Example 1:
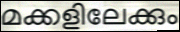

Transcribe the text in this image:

മക്കളിലേക്കും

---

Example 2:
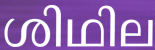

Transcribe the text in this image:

ശിഥില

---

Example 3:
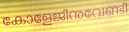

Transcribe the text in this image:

കോളേജിനുവേണ്ടി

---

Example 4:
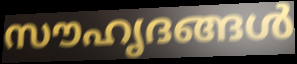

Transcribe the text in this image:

സൗഹൃദങ്ങൾ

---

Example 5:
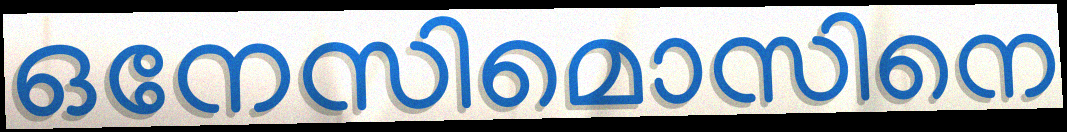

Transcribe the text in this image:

ഒനേസിമൊസിനെ